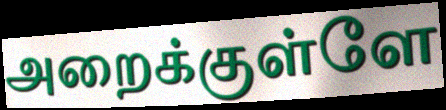
அறைக்குள்ளே